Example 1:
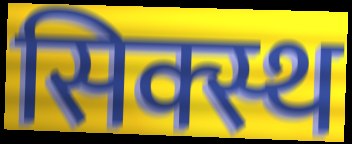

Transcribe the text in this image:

सिक्स्थ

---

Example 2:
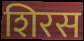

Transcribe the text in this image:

शिरस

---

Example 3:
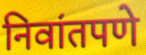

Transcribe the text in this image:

निवांतपणे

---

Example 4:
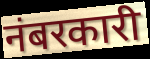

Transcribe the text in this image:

नंबरकारी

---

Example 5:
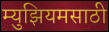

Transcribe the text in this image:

म्युझियमसाठी